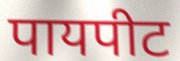
पायपीट